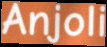
Anjoli